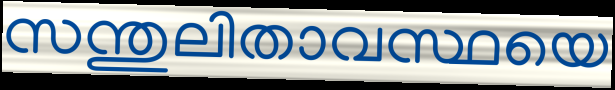
സന്തുലിതാവസ്ഥയെ